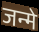
जन्मे